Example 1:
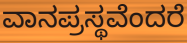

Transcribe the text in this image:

ವಾನಪ್ರಸ್ಥವೆಂದರೆ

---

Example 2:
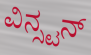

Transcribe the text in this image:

ವಿನ್ಸ್ಟನ್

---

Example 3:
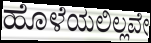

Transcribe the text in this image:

ಹೊಳೆಯಲಿಲ್ಲವೇ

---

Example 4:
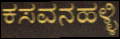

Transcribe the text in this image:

ಕಸವನಹಳ್ಳಿ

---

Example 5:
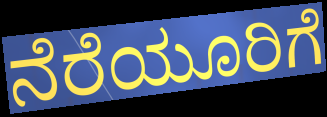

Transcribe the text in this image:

ನೆರೆಯೂರಿಗೆ